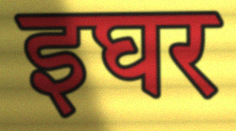
इघर